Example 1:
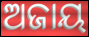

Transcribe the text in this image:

ଅଜାୟ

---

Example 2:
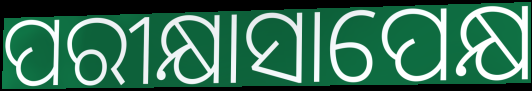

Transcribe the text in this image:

ପରୀକ୍ଷାସାପେକ୍ଷ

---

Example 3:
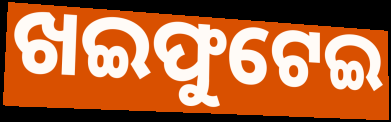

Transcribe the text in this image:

ଖଇଫୁଟେଇ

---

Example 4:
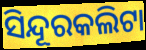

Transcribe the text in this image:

ସିନ୍ଦୂରକଲିଟା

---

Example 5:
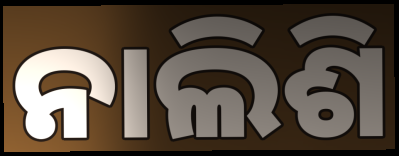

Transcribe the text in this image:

ନାଲିଶି